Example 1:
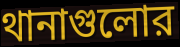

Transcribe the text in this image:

থানাগুলোর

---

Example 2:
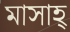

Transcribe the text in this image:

মাসাহ্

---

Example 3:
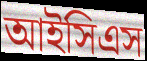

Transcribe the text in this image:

আইসিএস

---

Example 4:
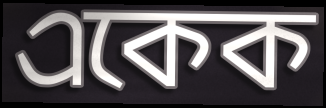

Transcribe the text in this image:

একেক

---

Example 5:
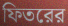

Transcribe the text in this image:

ফিতরের